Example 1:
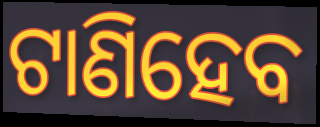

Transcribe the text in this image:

ଟାଣିହେବ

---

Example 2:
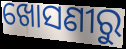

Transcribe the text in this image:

ଖୋସଣୀରୁ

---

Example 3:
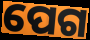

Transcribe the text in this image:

ପେଗ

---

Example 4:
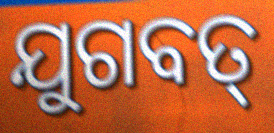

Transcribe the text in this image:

ଯୁଗବତ୍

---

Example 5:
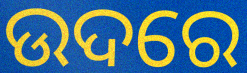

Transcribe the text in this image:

ଉଦରେ